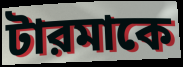
টারমাকে